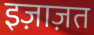
इज़ाज़त